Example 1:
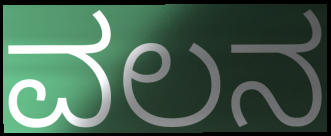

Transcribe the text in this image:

ವಲನ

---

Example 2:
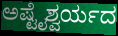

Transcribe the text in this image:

ಅಷ್ಟೈಶ್ವರ್ಯದ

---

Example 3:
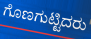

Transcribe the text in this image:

ಗೊಣಗುಟ್ಟಿದರು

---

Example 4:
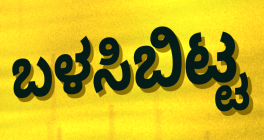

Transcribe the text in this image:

ಬಳಸಿಬಿಟ್ಟ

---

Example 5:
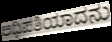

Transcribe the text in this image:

ಅಧಿಪತಿಯಾದನು